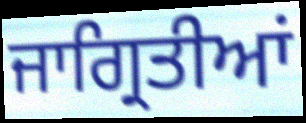
ਜਾਗ੍ਰਿਤੀਆਂ